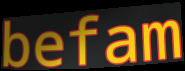
befam